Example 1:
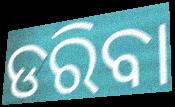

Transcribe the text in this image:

ଡରିବା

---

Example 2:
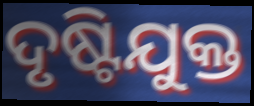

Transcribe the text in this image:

ଦୃଷ୍ଟିଯୁକ୍ତ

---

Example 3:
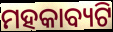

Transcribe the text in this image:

ମହକାବ୍ୟଟି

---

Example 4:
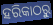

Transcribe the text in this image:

ହରିକାଠରୁ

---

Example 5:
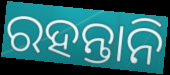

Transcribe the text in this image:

ରହନ୍ତାନି